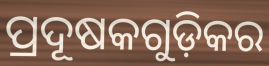
ପ୍ରଦୂଷକଗୁଡ଼ିକର